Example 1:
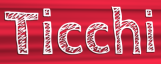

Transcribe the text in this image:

Ticchi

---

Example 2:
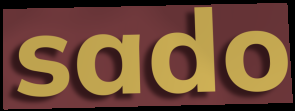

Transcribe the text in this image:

sado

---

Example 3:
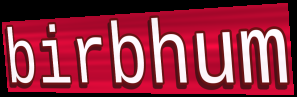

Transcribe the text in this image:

birbhum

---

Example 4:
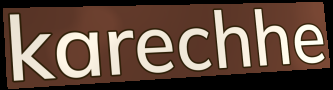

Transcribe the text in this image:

karechhe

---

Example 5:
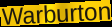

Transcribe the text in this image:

Warburton